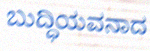
ಬುದ್ಧಿಯವನಾದ